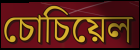
চোচিয়েল